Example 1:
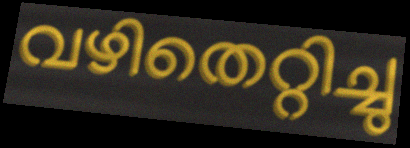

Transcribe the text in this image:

വഴിതെറ്റിച്ചു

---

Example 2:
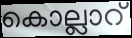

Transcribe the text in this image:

കൊല്ലാറ്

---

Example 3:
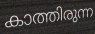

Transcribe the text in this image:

കാത്തിരുന്ന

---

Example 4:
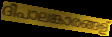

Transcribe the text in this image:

ദീപാലങ്കാരങ്ങള്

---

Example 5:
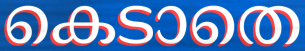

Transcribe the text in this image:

കെടാതെ